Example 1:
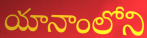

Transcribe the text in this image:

యానాంలోని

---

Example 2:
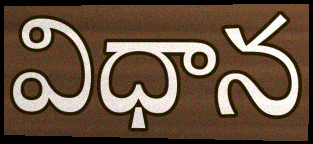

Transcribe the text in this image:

విధాన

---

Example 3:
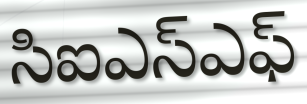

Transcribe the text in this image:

సిఐఎస్ఎఫ్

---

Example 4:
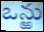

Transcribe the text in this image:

ఒన్ఱు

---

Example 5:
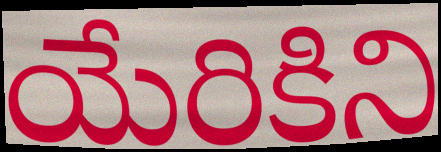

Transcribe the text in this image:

యేరికిని